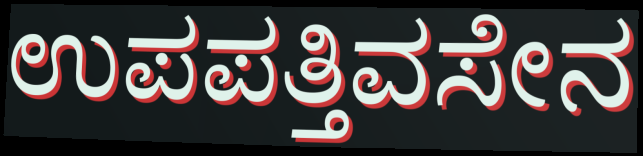
ಉಪಪತ್ತಿವಸೇನ